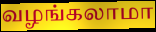
வழங்கலாமா